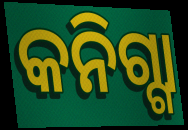
କନିଗ୍ଗା